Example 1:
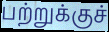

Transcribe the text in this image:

பற்றுக்குச்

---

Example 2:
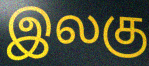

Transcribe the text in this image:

இலகு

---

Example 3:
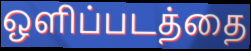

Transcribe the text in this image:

ஒளிப்படத்தை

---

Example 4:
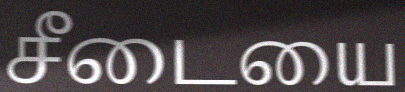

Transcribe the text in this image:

சீடையை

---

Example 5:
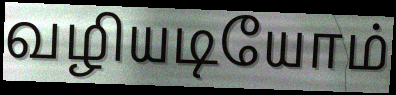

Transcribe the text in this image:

வழியடியோம்